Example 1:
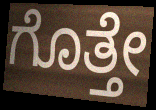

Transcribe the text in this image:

ಗೊತ್ತೇ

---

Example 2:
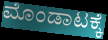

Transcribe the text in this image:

ಮೊಂಡಾಟಕ್ಕೆ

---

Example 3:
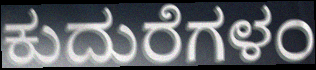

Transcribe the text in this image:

ಕುದುರೆಗಳಂ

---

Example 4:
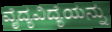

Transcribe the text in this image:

ವೈದ್ಯವಿದ್ಯೆಯನ್ನು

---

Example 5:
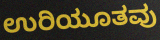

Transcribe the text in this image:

ಉರಿಯೂತವು